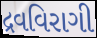
દ્રવવિરાગી